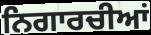
ਨਿਗਾਰਚੀਆਂ